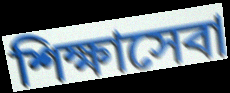
শিক্ষাসেবা